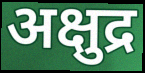
अक्षुद्र